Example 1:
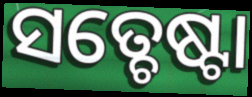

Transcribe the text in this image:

ସତ୍ଚେଷ୍ଟା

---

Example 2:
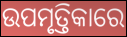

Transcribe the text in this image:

ଉପମୃତ୍ତିକାରେ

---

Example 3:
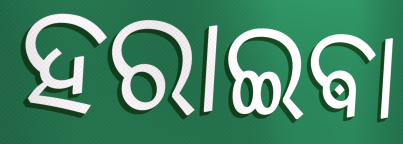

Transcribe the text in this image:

ହରାଇଵା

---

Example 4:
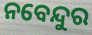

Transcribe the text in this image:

ନବେନ୍ଦୁର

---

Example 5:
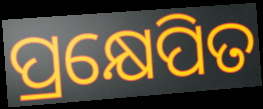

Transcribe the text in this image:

ପ୍ରକ୍ଷେପିତ